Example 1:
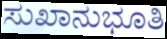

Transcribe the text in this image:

ಸುಖಾನುಭೂತಿ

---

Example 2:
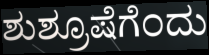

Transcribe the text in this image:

ಶುಶ್ರೂಷೆಗೆಂದು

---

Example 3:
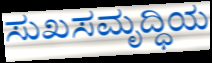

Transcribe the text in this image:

ಸುಖಸಮೃದ್ಧಿಯ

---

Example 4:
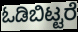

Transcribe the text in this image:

ಓಡಿಬಿಟ್ಟರೆ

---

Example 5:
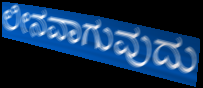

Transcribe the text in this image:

ಲೀನವಾಗುವುದು